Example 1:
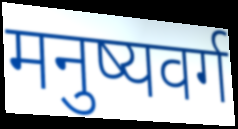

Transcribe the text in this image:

मनुष्यवर्ग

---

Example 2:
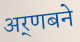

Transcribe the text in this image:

अर्णबने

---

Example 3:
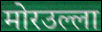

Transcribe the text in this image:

मोरउल्ला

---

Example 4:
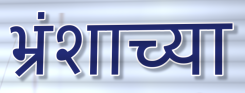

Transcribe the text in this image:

भ्रंशाच्या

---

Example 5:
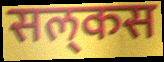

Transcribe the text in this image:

सल्कस